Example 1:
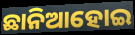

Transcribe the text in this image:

ଛାନିଆହୋଇ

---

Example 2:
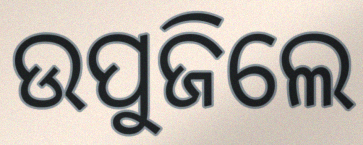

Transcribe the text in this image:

ଉପୁଜିଲେ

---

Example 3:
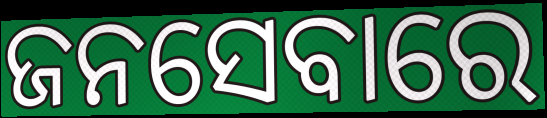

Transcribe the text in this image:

ଜନସେବାରେ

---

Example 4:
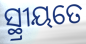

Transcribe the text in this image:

ସ୍ଥ୍ରୀୟତେ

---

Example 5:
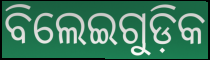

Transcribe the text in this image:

ବିଲେଇଗୁଡ଼ିକ